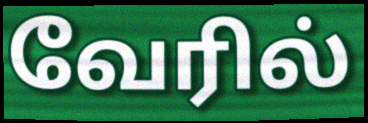
வேரில்